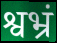
श्वभ्रं